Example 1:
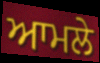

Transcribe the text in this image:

ਆਮਲੇ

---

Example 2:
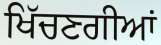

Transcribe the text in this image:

ਖਿੱਚਣਗੀਆਂ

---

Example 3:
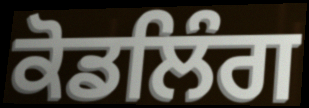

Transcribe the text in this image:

ਕੋਡਲਿੰਗ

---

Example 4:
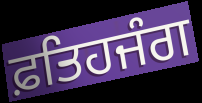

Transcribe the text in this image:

ਫ਼ਤਿਹਜੰਗ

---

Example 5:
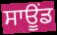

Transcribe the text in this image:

ਸਾਊਂਡ